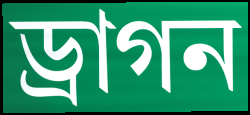
ড্রাগন